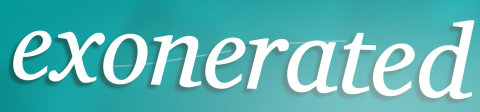
exonerated